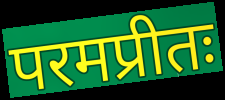
परमप्रीतः